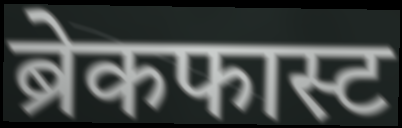
ब्रेकफास्ट